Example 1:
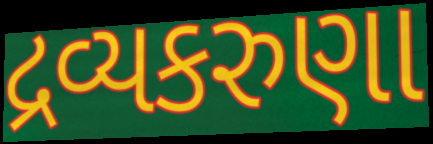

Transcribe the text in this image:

દ્રવ્યકરુણા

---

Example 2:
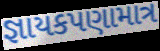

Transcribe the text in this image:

જ્ઞાયકપણામાત્ર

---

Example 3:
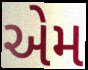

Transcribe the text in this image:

એેમ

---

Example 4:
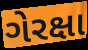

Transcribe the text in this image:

ગેરક્ષા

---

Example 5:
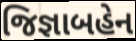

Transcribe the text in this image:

જિજ્ઞાબહેન